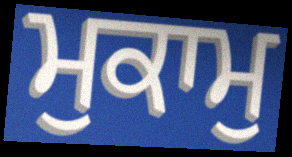
ਮੁਕਾਮੁ